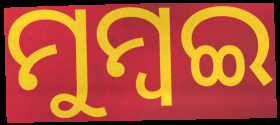
ମୁମ୍ବଇ